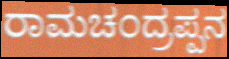
ರಾಮಚಂದ್ರಪ್ಪನ